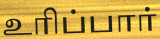
உரிப்பார்